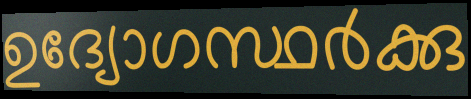
ഉദ്യോഗസ്ഥർക്കു